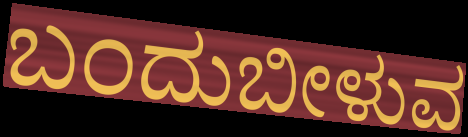
ಬಂದುಬೀಳುವ